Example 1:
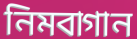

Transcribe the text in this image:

নিমবাগান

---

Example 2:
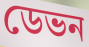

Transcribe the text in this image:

ডেভন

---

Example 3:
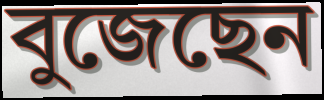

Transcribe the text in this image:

বুজেছেন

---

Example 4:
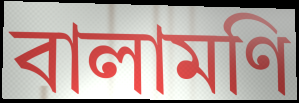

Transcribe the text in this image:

বালামণি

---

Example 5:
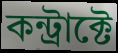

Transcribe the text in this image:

কন্ট্রাক্টে